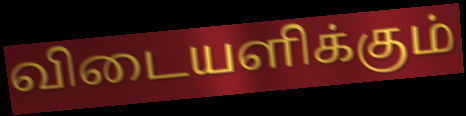
விடையளிக்கும்